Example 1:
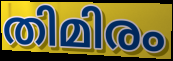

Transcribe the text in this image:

തിമിരം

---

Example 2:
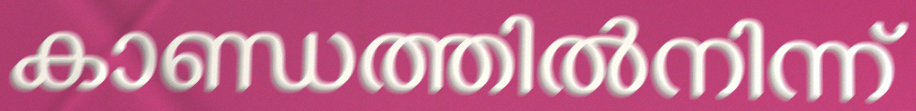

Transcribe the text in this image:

കാണ്ഡത്തിൽനിന്ന്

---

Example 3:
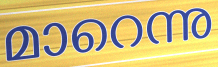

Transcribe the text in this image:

മാറെന്നു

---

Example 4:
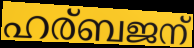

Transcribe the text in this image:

ഹര്ബജന്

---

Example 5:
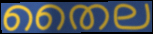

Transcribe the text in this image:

തൈല